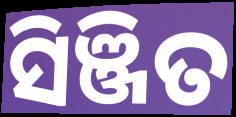
ସିଞ୍ଜିତ